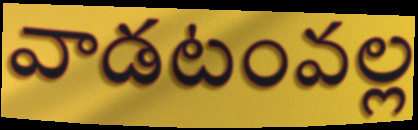
వాడటంవల్ల